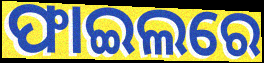
ଫାଇଲରେ